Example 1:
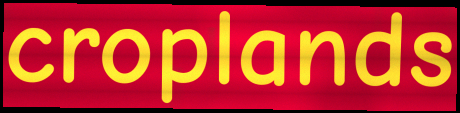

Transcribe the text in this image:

croplands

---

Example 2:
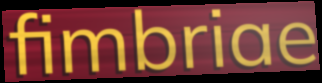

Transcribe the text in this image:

fimbriae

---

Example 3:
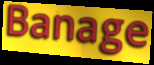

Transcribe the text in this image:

Banage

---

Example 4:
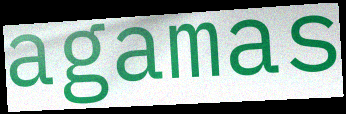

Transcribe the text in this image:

agamas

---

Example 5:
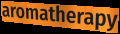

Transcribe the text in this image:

aromatherapy